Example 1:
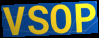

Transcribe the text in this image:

VSOP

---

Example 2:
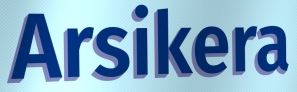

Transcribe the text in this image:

Arsikera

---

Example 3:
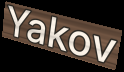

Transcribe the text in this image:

Yakov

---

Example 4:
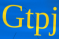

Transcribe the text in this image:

Gtpj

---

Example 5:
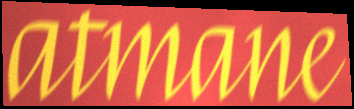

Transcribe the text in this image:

atmane